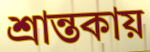
শ্রান্তকায়